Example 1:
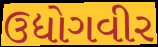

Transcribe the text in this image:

ઉદ્યોગવીર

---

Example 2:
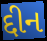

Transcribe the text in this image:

દ્દીન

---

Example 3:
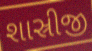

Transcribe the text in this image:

શાસ્રીજી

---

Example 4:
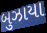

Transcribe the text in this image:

બુઝાયા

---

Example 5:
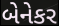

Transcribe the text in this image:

બેનેકર